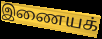
இணையக்